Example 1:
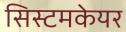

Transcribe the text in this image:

सिस्टमकेयर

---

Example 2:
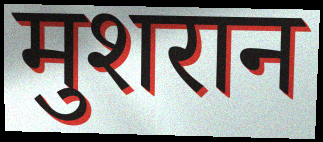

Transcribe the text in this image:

मुशरान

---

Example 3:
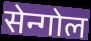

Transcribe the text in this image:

सेन्गोल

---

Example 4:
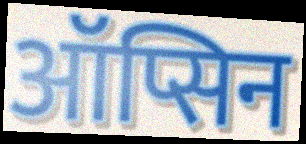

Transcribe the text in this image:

ऑप्सिन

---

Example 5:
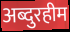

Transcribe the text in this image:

अब्दुरहीम